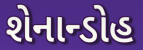
શેનાન્ડોહ